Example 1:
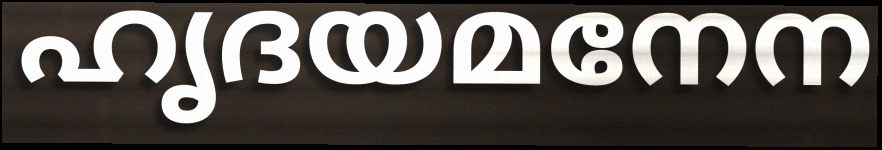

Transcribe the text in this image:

ഹൃദയമനേന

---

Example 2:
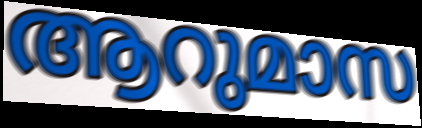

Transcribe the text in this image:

ആറുമാസ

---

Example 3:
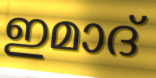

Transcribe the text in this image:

ഇമാദ്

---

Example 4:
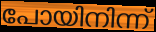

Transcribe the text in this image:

പോയിനിന്ന്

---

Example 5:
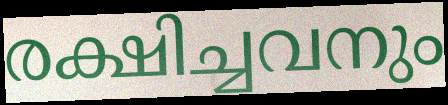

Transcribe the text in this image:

രക്ഷിച്ചവനും